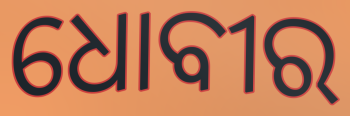
ଧୋବୀର